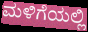
ಮಳಿಗೆಯಲ್ಲಿ